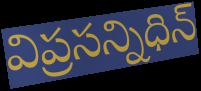
విప్రసన్నిధిన్